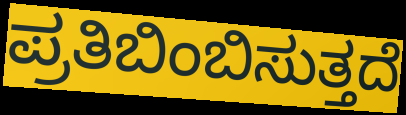
ಪ್ರತಿಬಿಂಬಿಸುತ್ತದೆ